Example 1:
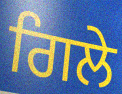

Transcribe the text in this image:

ਗਿਲੇ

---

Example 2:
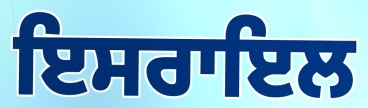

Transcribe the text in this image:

ਇਸਰਾਇਲ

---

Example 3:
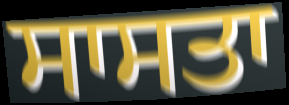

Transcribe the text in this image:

ਸਾਸਤਾ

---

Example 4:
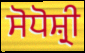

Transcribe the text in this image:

ਸੋਧੋਸ਼੍ਰੀ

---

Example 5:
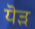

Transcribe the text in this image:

ਧੋੜ